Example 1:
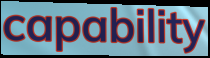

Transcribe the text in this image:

capability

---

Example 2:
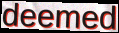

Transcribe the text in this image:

deemed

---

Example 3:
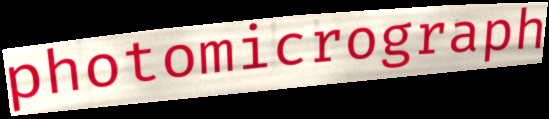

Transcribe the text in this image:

photomicrograph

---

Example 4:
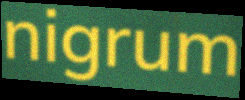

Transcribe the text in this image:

nigrum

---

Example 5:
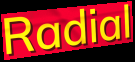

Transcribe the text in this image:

Radial